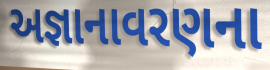
અજ્ઞાનાવરણના